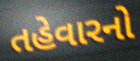
તહેવારનો